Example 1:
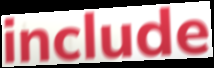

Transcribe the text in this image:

include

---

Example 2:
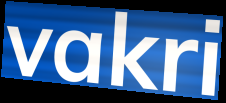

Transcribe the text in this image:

vakri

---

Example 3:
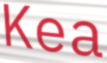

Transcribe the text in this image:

Kea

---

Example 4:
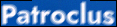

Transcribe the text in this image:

Patroclus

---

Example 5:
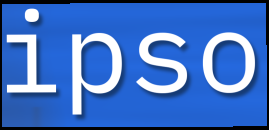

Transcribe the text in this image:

ipso